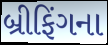
બ્રીફિંગના